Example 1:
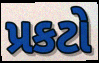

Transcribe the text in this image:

પ્રકટો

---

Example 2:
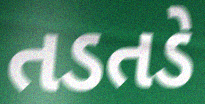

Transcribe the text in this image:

તડતડે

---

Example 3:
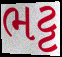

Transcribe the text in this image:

ભટ્ટ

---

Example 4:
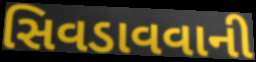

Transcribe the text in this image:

સિવડાવવાની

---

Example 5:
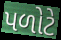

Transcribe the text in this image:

પળોટે